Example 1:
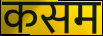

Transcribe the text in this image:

कसम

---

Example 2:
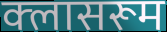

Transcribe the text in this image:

क्‍लासरूम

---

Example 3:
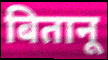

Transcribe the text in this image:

बितानू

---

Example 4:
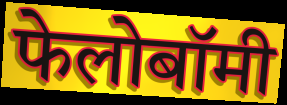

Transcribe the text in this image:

फेलोबॉमी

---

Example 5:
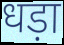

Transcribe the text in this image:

धड़ा